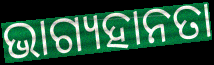
ଭାଗ୍ୟହାନତା